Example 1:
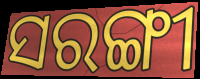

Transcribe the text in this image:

ସରଙ୍ଗୀ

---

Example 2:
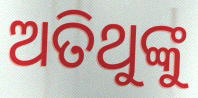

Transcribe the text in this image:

ଅତିଥୁଙ୍କୁ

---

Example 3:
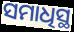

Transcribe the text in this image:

ସମାଧିସ୍ଥ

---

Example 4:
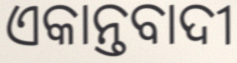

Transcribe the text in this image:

ଏକାନ୍ତବାଦୀ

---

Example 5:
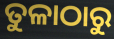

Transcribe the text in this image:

ତୁଳାଠାରୁ